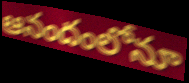
ఆనందంలోనూ